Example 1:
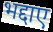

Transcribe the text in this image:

भद्दाए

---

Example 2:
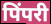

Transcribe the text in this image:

पिंपरी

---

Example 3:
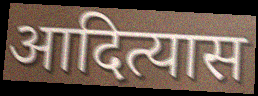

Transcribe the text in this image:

आदित्यास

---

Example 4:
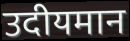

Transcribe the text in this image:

उदीयमान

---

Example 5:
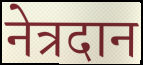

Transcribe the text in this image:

नेत्रदान